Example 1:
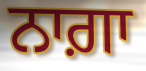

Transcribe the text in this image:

ਨਾਗ਼ਾ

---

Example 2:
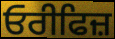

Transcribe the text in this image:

ਓਰੀਫਿਜ਼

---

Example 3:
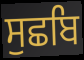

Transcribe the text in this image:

ਸੁਛਬਿ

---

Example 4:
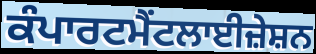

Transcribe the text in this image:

ਕੰਪਾਰਟਮੈਂਟਲਾਈਜ਼ੇਸ਼ਨ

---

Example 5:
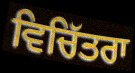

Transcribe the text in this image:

ਵਿਚਿੱਤਰਾ